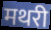
मथरी